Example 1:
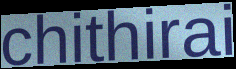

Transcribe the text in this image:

chithirai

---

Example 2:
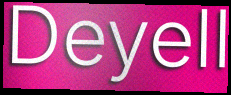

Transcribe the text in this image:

Deyell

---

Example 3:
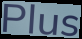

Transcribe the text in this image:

Plus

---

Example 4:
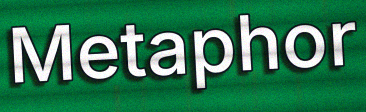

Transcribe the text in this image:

Metaphor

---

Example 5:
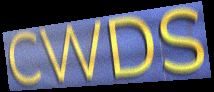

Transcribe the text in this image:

CWDS